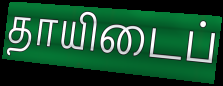
தாயிடைப்